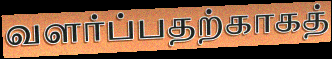
வளர்ப்பதற்காகத்